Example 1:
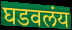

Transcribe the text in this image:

घडवलंय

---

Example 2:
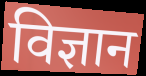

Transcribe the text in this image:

विज्ञान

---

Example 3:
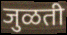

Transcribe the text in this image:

जुळती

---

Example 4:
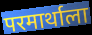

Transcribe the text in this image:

परमार्थाला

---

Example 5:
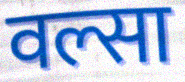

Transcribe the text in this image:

वल्सा